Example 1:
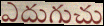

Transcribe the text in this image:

ఎదుగుచు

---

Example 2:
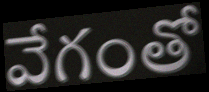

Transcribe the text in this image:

వేగంతో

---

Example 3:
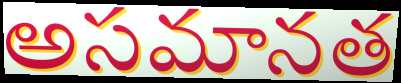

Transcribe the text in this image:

అసమానత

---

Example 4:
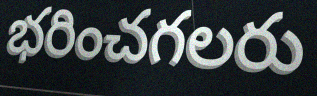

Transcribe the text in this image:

భరించగలరు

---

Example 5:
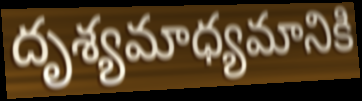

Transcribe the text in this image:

దృశ్యమాధ్యమానికి